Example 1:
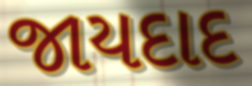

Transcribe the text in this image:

જાયદાદ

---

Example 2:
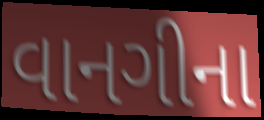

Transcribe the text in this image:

વાનગીના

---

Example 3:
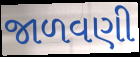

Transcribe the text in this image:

જાળવણી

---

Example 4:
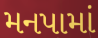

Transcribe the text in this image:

મનપામાં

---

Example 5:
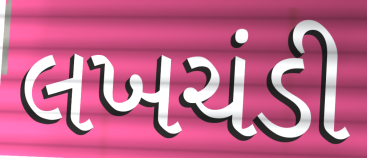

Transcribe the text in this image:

લખચંડી